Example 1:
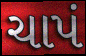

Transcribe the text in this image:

ચાપં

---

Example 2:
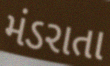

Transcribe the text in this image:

મંડરાતા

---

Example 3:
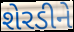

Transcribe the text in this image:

શેરડીને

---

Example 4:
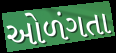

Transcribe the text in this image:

ઓળંગતા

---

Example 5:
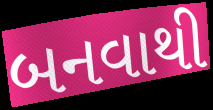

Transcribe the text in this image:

બનવાથી